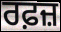
ਰਫ਼ਜ਼